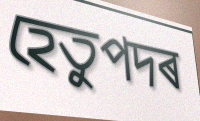
হেতুপদৰ